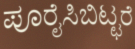
ಪೂರೈಸಿಬಿಟ್ಟರೆ